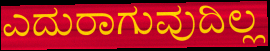
ಎದುರಾಗುವುದಿಲ್ಲ